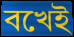
বখেই